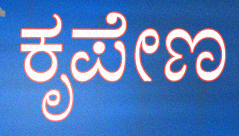
ಕೃಪೇಣ